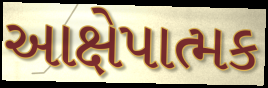
આક્ષેપાત્મક